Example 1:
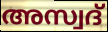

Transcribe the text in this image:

അസ്വദ്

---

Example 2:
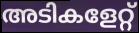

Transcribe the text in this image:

അടികളേറ്റ്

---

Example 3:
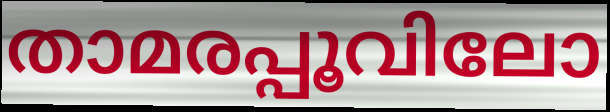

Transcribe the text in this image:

താമരപ്പൂവിലോ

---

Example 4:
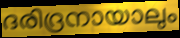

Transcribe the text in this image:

ദരിദ്രനായാലും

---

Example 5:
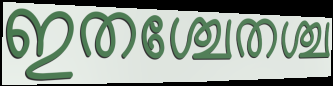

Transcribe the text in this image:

ഇതശ്ചേതശ്ച